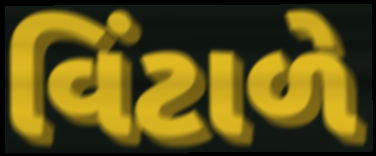
વિંટાળે